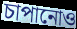
চাপানোও